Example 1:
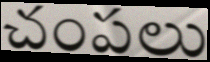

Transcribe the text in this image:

చంపలు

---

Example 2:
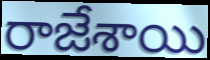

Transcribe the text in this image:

రాజేశాయి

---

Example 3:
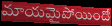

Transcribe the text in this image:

మాయమైపోయిందో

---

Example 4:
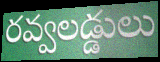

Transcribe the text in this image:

రవ్వలడ్డులు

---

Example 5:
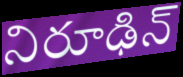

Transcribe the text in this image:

నిరూఢిన్